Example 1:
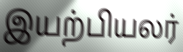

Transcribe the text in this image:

இயற்பியலர்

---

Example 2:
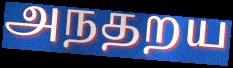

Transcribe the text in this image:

அநதறய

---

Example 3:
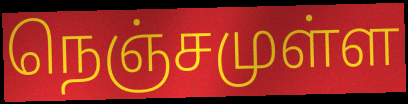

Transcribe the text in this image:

நெஞ்சமுள்ள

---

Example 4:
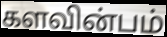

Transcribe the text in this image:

களவின்பம்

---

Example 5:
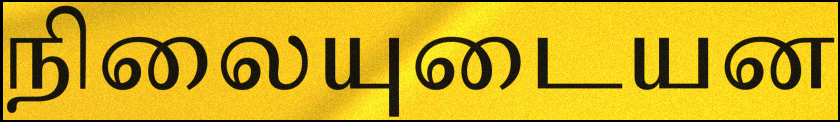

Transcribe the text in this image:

நிலையுடையன